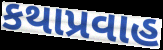
કથાપ્રવાહ